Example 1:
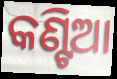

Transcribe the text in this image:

କଣ୍ଟିଆ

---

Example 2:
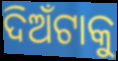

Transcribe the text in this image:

ଦିଅଁଟାକୁ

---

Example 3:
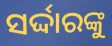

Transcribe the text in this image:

ସର୍ଦ୍ଦାରଙ୍କୁ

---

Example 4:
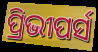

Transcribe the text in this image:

ପ୍ରିଭୀପର୍ସ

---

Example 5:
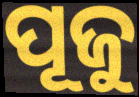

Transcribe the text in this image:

ପୂଜୁ